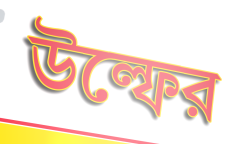
উল্ফের